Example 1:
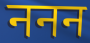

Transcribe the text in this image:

ननन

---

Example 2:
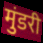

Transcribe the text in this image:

मुंडरी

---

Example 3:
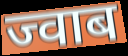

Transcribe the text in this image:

ज्वाब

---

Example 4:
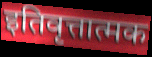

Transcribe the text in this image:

इतिवृत्तात्मक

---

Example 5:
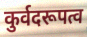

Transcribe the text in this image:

कुर्वदरूपत्व